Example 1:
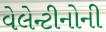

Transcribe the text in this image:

વેલેન્ટીનોની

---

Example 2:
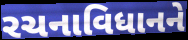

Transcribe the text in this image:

રચનાવિધાનને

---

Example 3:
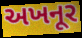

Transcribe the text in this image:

અખનૂર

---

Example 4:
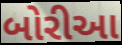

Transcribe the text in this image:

બોરીઆ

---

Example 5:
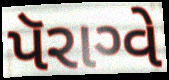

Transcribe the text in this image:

પૅરાગ્વે